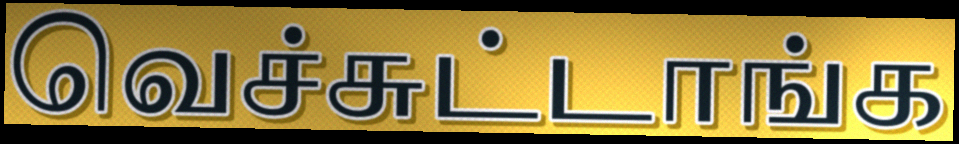
வெச்சுட்டாங்க